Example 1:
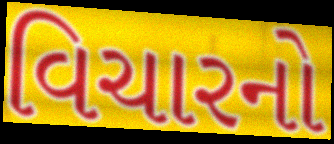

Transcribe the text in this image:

વિચારનો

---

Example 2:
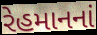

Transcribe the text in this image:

રેહમાનનાં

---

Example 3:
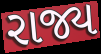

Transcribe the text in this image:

રાજ્ય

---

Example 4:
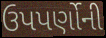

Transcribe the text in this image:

ઉપપર્ણોની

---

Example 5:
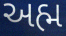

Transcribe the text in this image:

અહ્મ